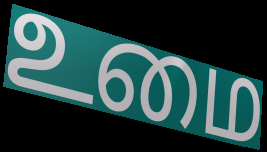
உமை